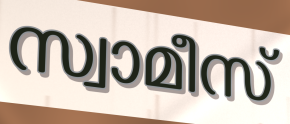
സ്വാമീസ്